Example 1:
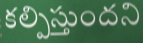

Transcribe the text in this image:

కల్పిస్తుందని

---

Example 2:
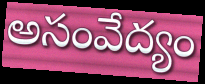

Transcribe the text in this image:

అసంవేద్యం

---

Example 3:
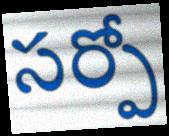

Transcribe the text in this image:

సర్పో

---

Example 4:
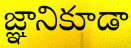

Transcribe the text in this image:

జ్ఞానికూడా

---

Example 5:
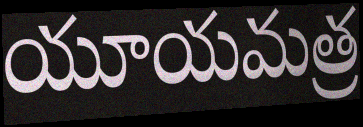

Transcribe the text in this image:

యూయమత్ర